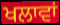
ਖਲਾਵਾਂ